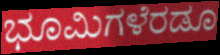
ಭೂಮಿಗಳೆರಡೂ